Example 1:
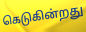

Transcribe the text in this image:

கெடுகின்றது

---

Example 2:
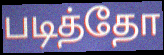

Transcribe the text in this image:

படித்தோ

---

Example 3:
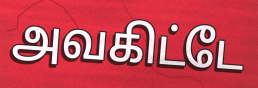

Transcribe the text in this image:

அவகிட்டே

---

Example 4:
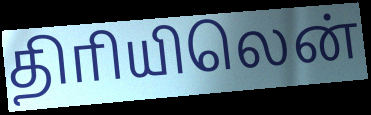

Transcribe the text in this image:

திரியிலென்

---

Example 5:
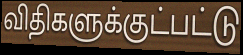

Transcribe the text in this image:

விதிகளுக்குட்பட்டு